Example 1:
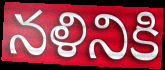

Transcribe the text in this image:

నళినికి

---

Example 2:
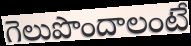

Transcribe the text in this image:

గెలుపొందాలంటే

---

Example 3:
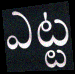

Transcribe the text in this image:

ఎట్ట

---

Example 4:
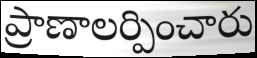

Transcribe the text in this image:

ప్రాణాలర్పించారు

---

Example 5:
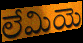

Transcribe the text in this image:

లేమియె